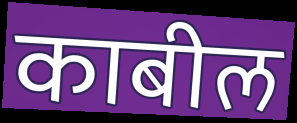
काबील